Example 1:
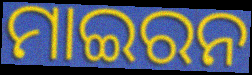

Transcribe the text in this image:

ମାଇରନ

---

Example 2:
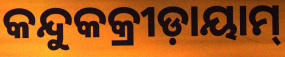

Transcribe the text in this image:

କନ୍ଦୁକକ୍ରୀଡ଼ାୟାମ୍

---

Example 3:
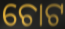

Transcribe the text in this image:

ଚୋଟ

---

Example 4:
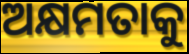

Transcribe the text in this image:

ଅକ୍ଷମତାକୁ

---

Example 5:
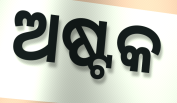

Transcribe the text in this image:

ଅଷ୍ଟକ